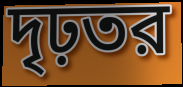
দৃঢ়তর